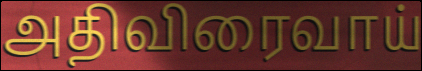
அதிவிரைவாய்